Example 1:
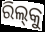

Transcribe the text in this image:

ରିଲ୍‌କୁ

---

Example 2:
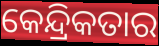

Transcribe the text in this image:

କେନ୍ଦ୍ରିକତାର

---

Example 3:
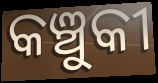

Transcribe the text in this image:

କଞ୍ଚୁକୀ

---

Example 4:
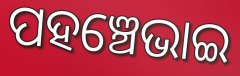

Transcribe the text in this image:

ପହଞ୍ଚେଭାଇ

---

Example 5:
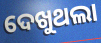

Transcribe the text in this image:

ଦେଖୁଥଲା